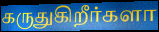
கருதுகிறீர்களா